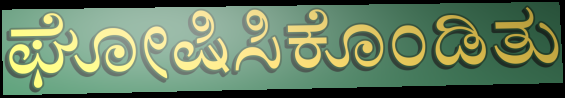
ಘೋಷಿಸಿಕೊಂಡಿತು